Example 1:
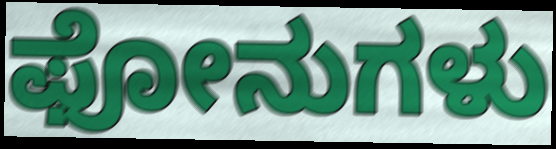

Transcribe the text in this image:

ಫೋನುಗಳು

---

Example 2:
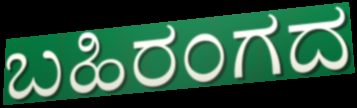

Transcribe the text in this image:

ಬಹಿರಂಗದ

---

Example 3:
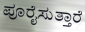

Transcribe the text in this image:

ಪೂರೈಸುತ್ತಾರೆ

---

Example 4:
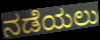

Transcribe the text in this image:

ನಡೆಯಲು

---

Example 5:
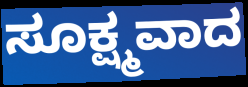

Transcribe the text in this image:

ಸೂಕ್ಷ್ಮವಾದ